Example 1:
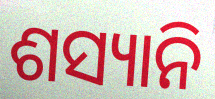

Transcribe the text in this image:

ଶସ୍ୟାନି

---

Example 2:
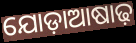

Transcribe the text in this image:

ଯୋଡ଼ାଆଷାଢ଼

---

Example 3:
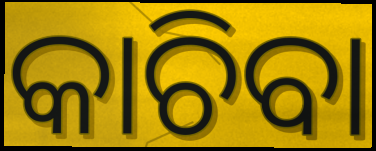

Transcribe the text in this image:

କାଚିବା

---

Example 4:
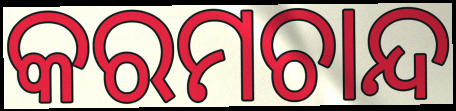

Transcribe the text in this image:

କରମଚାନ୍ଦ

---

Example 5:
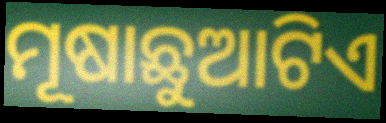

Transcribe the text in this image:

ମୂଷାଛୁଆଟିଏ